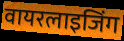
वायरलाइजिंग